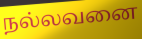
நல்லவனை